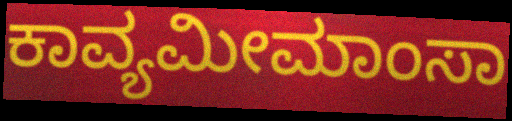
ಕಾವ್ಯಮೀಮಾಂಸಾ